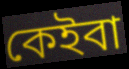
কেইবা